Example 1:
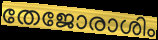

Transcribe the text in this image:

തേജോരാശിം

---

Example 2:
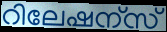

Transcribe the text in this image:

റിലേഷന്സ്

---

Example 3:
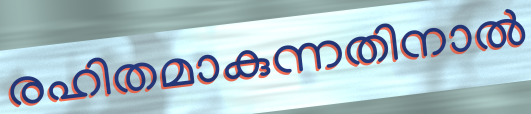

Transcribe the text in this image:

രഹിതമാകുന്നതിനാൽ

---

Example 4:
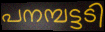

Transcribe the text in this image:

പനമ്പട്ടടി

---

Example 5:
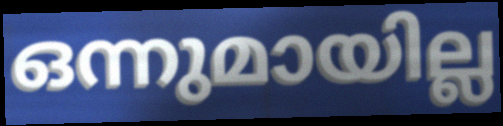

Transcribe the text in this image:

ഒന്നുമായില്ല